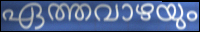
ഏത്തവാഴയും